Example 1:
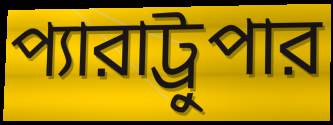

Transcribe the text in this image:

প্যারাট্রুপার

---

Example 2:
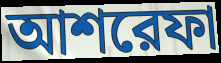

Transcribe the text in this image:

আশরেফা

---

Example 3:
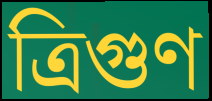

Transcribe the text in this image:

ত্রিগুণ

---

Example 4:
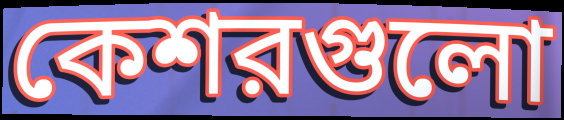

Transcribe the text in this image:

কেশরগুলো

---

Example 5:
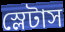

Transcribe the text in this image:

স্লেটাস